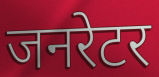
जनरेटर